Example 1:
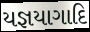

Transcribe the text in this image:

યજ્ઞયાગાદિ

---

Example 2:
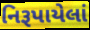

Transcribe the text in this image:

નિરૂપાયેલાં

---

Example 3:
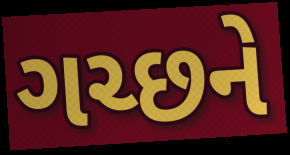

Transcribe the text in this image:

ગચ્છને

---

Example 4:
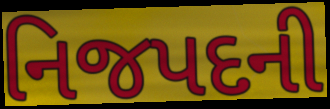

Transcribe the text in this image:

નિજપદની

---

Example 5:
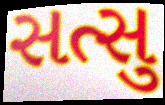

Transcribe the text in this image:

સત્સુ